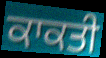
ਕਾਕਤੀ